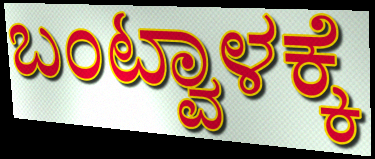
ಬಂಟ್ವಾಳಕ್ಕೆ